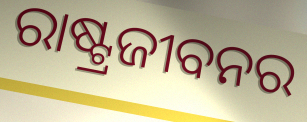
ରାଷ୍ଟ୍ରଜୀବନର